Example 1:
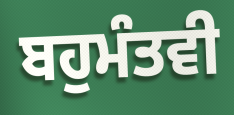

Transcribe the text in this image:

ਬਹੁਮੰਤਵੀ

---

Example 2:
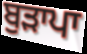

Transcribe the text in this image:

ਬੁੜਾਪਾ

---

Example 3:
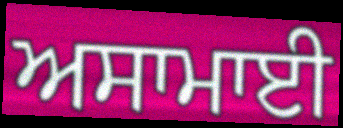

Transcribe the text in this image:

ਅਸਾਮਾਈ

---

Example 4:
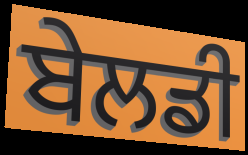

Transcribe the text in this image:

ਬੇਲਡੀ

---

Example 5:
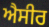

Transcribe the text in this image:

ਐਸੀਰ